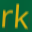
rk